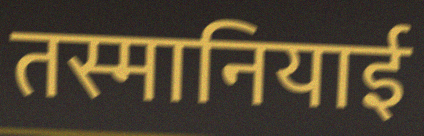
तस्मानियाई